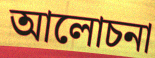
আলোচনা